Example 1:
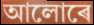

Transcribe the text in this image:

আলোৰে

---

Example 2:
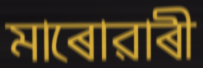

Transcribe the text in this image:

মাৰোৱাৰী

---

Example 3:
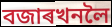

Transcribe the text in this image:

বজাৰখনলৈ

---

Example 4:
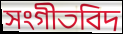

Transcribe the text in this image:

সংগীতবিদ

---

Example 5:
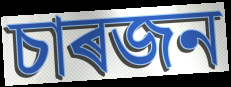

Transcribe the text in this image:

চাৰজন